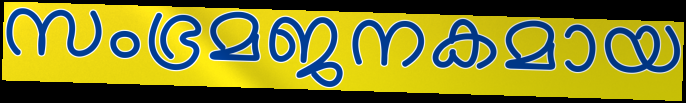
സംഭ്രമജനകമായ